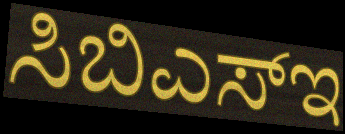
ಸಿಬಿಎಸ್ಇ